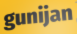
gunijan